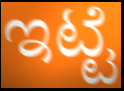
ಇಟ್ಟೆ